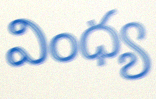
వింధ్య